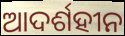
ଆଦର୍ଶହୀନ